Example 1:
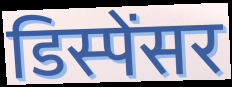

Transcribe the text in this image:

डिस्पेंसर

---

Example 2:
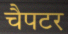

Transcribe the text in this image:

चैपटर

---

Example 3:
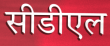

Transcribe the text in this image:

सीडीएल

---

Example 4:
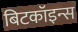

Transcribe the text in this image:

बिटकॉइन्स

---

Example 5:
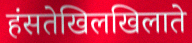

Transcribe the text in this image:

हंसतेखिलखिलाते